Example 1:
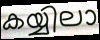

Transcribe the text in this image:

കയ്യിലാ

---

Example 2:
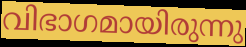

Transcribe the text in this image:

വിഭാഗമായിരുന്നു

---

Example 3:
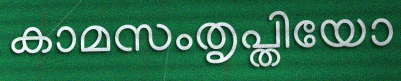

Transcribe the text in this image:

കാമസംതൃപ്തിയോ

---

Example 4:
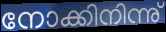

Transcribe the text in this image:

നോക്കിനിന്നു്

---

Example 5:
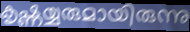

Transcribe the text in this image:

കൃഷ്ണയ്യരുമായിരുന്നു